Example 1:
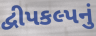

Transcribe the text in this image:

દ્વીપકલ્પનું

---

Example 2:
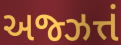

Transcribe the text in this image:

અજ્ઝત્તં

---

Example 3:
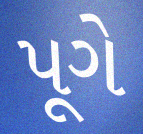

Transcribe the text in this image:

પૂગે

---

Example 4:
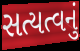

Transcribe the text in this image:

સત્યત્વનું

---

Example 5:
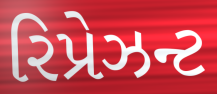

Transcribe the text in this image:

રિપ્રેઝન્ટ